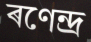
ৰণেন্দ্ৰ